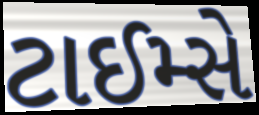
ટાઈમ્સે